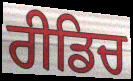
ਰੀਡਿਚ